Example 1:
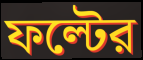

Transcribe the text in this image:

ফল্টের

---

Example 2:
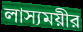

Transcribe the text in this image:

লাস্যময়ীর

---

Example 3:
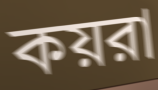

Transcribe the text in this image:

কয়রা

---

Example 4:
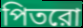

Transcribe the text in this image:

পিতরো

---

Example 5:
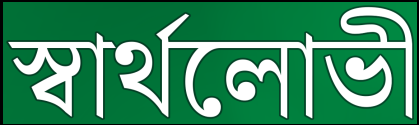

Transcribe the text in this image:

স্বার্থলোভী